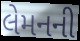
લેમનની